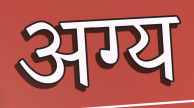
अग्य